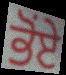
ਭੋਂਏ